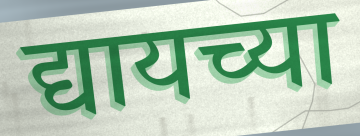
द्यायच्या